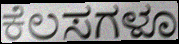
ಕೆಲಸಗಳೂ